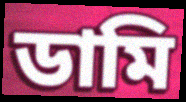
ডামি